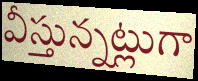
వీస్తున్నట్లుగా